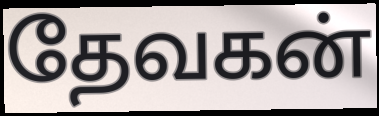
தேவகன்